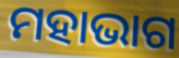
ମହାଭାଗ